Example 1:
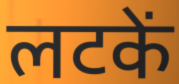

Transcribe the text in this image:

लटकें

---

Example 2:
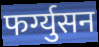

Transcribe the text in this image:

फर्ग्युसन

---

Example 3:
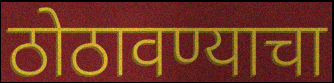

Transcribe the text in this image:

ठोठावण्याचा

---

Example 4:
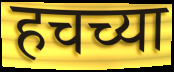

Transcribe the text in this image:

हचच्या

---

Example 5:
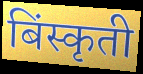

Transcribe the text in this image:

बिंस्कृती